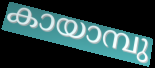
കായാമ്പു